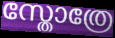
സ്തോത്രേ